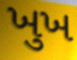
ખુખ